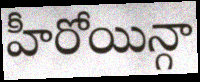
హీరోయిన్గా